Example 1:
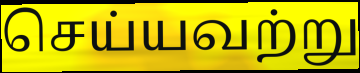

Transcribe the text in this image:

செய்யவற்று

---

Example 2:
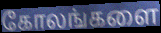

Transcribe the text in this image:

கோலங்களை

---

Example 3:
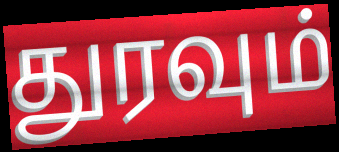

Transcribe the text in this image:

துரவும்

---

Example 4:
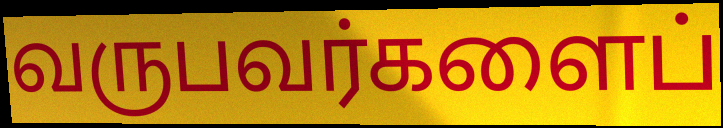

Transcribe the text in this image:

வருபவர்களைப்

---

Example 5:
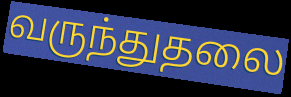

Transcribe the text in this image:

வருந்துதலை